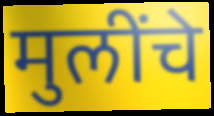
मुलींचे